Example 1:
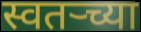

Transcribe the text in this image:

स्वतर्‍च्या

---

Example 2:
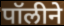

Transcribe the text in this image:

पॉलीने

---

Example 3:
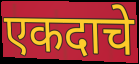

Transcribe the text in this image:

एकदाचे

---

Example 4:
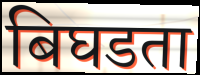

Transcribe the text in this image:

बिघडता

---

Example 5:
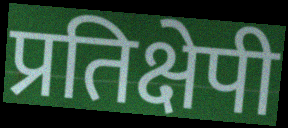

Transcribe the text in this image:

प्रतिक्षेपी